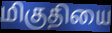
மிகுதியை